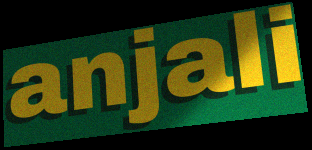
anjali